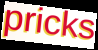
pricks